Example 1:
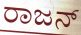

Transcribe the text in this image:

ರಾಜನ್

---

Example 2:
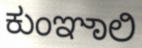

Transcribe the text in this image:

ಕುಂಞಾಲಿ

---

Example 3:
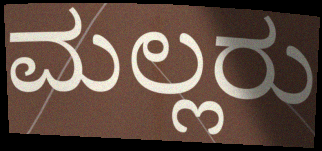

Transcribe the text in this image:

ಮಲ್ಲರು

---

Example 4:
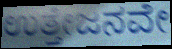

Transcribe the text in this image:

ಉತ್ತೇಜನವೇ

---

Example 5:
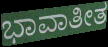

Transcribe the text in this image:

ಭಾವಾತೀತ